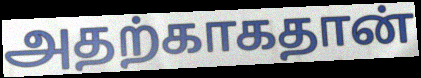
அதற்காகதான்